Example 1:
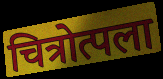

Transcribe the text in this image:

चित्रोत्पला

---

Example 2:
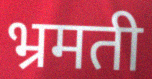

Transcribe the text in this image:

भ्रमती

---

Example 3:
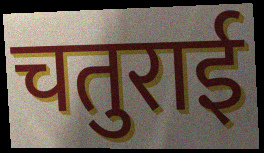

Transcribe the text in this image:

चतुराई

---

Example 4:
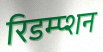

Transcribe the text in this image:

रिडम्प्शन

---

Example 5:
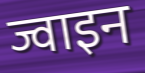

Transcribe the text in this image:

ज्वाइन